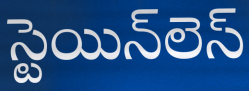
స్టెయిన్‌లెస్